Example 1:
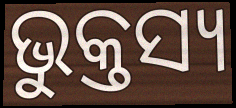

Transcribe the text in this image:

ଭୁକ୍ତସ୍ୟ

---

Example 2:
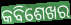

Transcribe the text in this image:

କବିଶେଖର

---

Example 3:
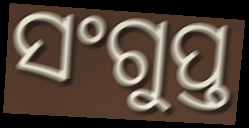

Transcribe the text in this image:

ସଂଗୁପ୍ତ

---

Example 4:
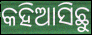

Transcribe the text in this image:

କହିଆସିଛୁ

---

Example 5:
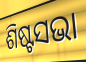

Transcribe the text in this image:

ଶିଷ୍ଟସଭା